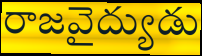
రాజవైద్యుడు